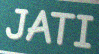
JATI